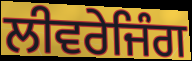
ਲੀਵਰੇਜਿੰਗ